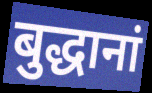
बुद्धानां